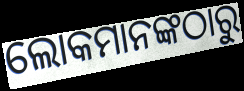
ଲୋକମାନଙ୍କଠାରୁ